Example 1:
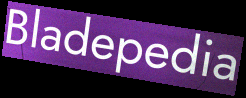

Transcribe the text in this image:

Bladepedia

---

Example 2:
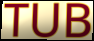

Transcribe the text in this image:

TUB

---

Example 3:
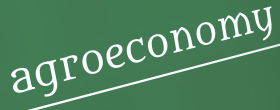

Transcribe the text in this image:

agroeconomy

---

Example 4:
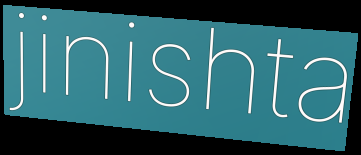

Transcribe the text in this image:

jinishta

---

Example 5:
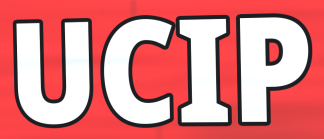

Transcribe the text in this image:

UCIP